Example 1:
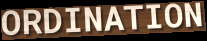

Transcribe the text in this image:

ORDINATION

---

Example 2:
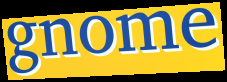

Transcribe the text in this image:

gnome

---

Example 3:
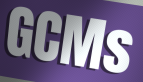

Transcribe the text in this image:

GCMs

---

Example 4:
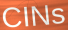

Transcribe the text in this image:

CINs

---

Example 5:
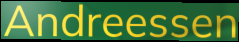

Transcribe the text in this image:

Andreessen